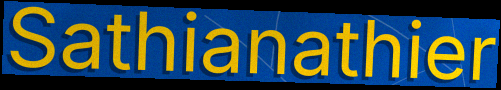
Sathianathier